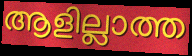
ആളില്ലാത്ത